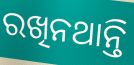
ରଖିନଥାନ୍ତି